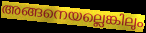
അങ്ങനെയല്ലെങ്കിലും